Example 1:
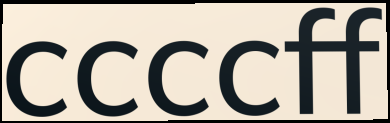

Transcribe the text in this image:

ccccff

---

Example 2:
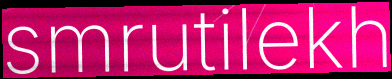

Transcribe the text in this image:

smrutilekh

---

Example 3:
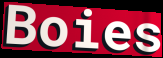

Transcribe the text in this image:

Boies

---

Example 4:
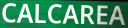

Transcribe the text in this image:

CALCAREA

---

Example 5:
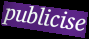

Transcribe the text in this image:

publicise